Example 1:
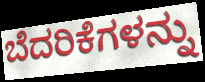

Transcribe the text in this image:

ಬೆದರಿಕೆಗಳನ್ನು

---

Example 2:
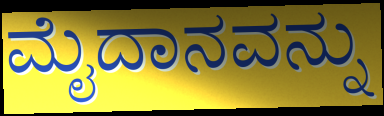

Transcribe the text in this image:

ಮೈದಾನವನ್ನು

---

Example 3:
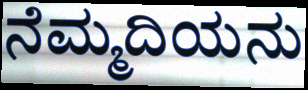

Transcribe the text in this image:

ನೆಮ್ಮದಿಯನು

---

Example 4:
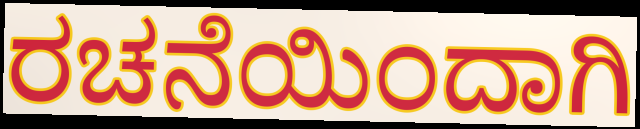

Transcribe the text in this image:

ರಚನೆಯಿಂದಾಗಿ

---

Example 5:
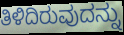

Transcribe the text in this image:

ತಿಳಿದಿರುವುದನ್ನು